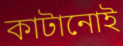
কাটানোই